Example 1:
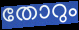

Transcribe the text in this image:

തോറും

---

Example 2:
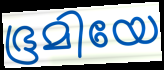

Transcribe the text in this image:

ഭൂമിയേ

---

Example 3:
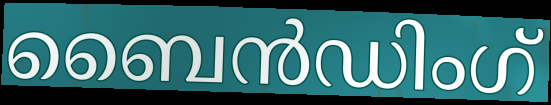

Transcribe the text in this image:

ബൈൻഡിംഗ്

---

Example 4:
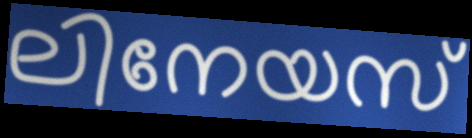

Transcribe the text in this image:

ലിനേയസ്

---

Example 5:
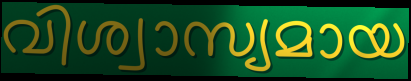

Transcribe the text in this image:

വിശ്വാസ്യമായ